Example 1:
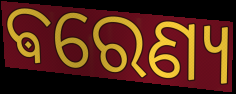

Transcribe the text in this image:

ଵରେଣ୍ୟ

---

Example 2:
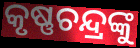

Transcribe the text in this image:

କୃଷ୍ଣଚନ୍ଦ୍ରଙ୍କୁ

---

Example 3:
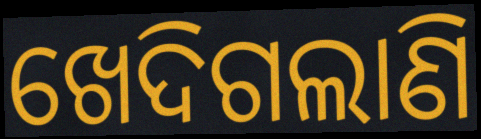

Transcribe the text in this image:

ଖେଦିଗଲାଣି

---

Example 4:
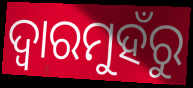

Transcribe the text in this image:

ଦ୍ଵାରମୁହଁରୁ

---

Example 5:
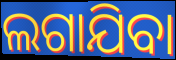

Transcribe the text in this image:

ଲଗାଯିବା